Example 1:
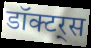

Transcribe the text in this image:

डॉक्टर्स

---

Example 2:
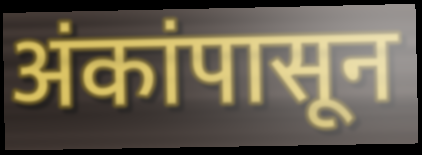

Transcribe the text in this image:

अंकांपासून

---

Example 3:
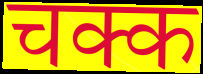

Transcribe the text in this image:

चक्‍क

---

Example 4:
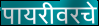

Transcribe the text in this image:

पायरीवरचे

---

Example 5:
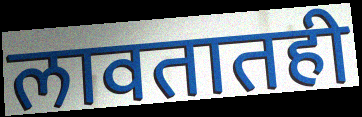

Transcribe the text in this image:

लावतातही